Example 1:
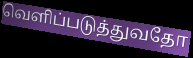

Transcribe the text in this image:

வெளிப்படுத்துவதோ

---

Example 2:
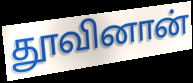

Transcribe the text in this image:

தூவினான்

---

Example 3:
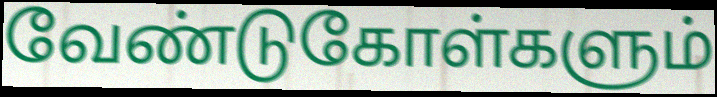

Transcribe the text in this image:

வேண்டுகோள்களும்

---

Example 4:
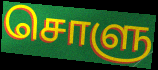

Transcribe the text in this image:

சொளு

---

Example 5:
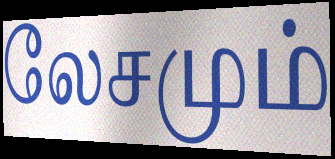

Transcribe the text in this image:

லேசமும்